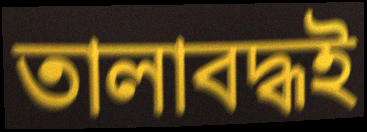
তালাবদ্ধই